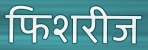
फिशरीज